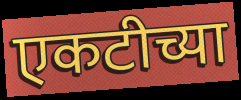
एकटीच्या